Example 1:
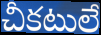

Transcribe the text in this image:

చీకటులే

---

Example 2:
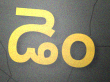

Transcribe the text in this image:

డెం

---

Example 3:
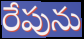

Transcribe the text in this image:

రేపును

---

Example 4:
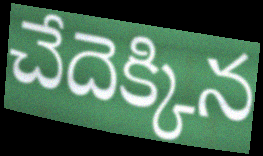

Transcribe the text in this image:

చేదెక్కిన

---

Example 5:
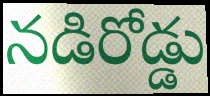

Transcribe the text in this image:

నడిరోడ్డు